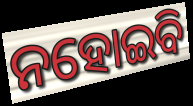
ନହୋଇବି